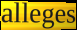
alleges